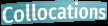
Collocations